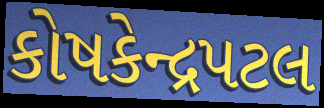
કોષકેન્દ્રપટલ